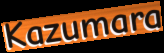
Kazumara